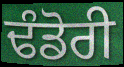
ਢੰਡੋਰੀ